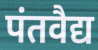
पंतवैद्य